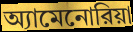
অ্যামেনোরিয়া